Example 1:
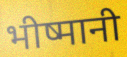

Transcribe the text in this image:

भीष्मानी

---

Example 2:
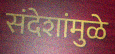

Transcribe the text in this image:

संदेशांमुळे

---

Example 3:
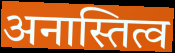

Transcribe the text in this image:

अनास्तित्व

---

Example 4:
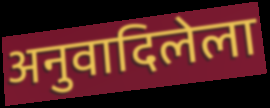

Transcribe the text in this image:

अनुवादिलेला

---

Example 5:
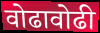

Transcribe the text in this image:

वोढावोढी